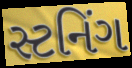
સ્ટનિંગ